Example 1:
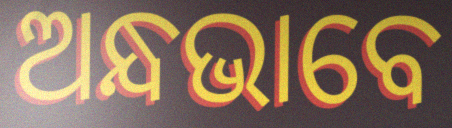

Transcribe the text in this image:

ଅନ୍ଧଭାବେ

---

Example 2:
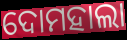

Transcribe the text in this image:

ଦୋମହାଲା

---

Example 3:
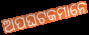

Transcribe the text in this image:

ଅପଘଟକମାନେ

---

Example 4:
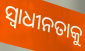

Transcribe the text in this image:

ସ୍ଵାଧୀନତାକୁ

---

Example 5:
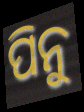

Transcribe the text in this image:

ପିନୁ